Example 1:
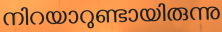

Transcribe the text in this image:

നിറയാറുണ്ടായിരുന്നു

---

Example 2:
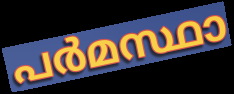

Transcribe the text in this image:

പർമസ്ഥാ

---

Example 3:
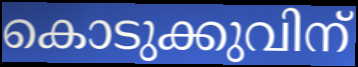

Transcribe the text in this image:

കൊടുക്കുവിന്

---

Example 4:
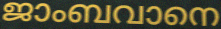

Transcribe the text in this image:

ജാംബവാനെ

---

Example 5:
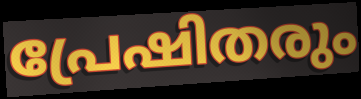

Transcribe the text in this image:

പ്രേഷിതരും